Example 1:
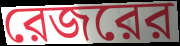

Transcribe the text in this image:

রেজরের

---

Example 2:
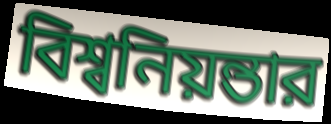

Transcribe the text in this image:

বিশ্বনিয়ন্তার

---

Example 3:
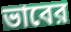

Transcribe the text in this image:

ভাবের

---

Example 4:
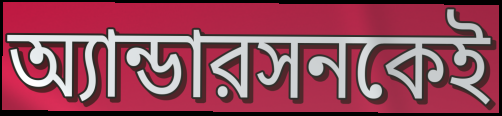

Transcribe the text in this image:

অ্যান্ডারসনকেই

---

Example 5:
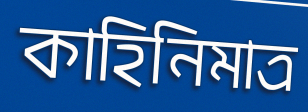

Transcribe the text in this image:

কাহিনিমাত্র